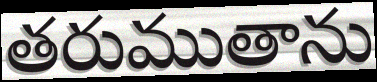
తరుముతాను